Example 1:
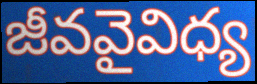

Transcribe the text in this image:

జీవవైవిధ్య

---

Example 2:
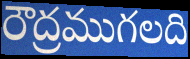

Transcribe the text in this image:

రౌద్రముగలది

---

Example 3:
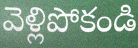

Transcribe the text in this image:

వెళ్లిపోకండి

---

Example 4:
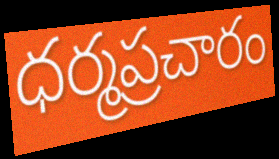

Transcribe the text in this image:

ధర్మప్రచారం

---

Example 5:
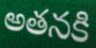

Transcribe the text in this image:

అతనకి